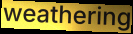
weathering